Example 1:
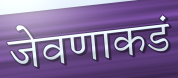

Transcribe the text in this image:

जेवणाकडं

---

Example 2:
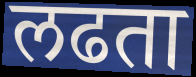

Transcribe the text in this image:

लढता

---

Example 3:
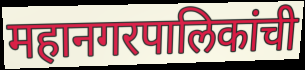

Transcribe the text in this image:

महानगरपालिकांची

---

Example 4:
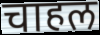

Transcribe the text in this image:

चाहल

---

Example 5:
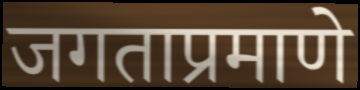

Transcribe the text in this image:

जगताप्रमाणे